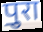
पु॒रा